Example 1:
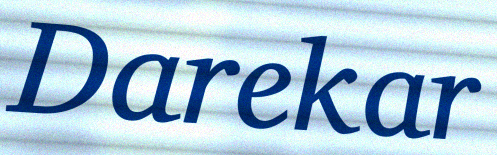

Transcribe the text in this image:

Darekar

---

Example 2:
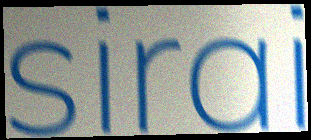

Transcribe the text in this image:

sirai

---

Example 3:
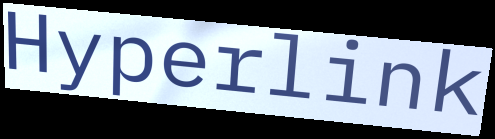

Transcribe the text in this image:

Hyperlink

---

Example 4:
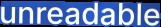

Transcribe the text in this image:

unreadable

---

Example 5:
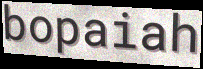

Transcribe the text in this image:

bopaiah